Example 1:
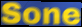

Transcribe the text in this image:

Sone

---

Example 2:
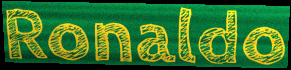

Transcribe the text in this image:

Ronaldo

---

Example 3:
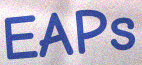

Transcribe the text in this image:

EAPs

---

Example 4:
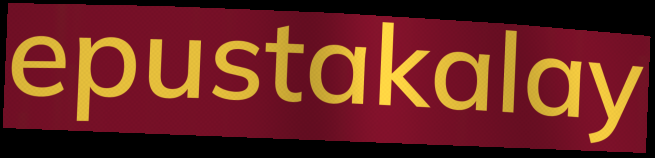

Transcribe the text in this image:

epustakalay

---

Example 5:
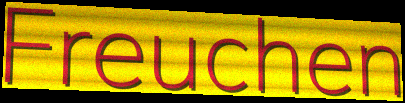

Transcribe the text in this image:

Freuchen